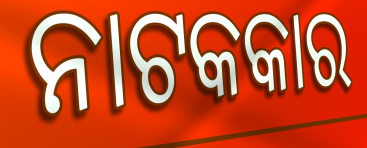
ନାଟକକାର